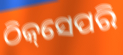
ଠିକ୍‌ସେପରି